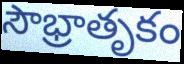
సౌభ్రాతృకం